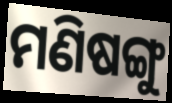
ମଣିଷଙ୍ଗୁ